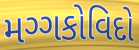
મગ્ગકોવિદો